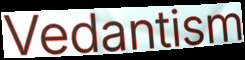
Vedantism